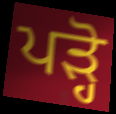
ਪੜ੍ਹੋ